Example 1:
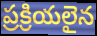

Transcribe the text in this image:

ప్రక్రియలైన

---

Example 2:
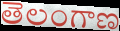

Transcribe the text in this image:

తెలంగాణ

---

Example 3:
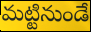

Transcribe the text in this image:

మట్టినుండే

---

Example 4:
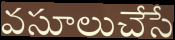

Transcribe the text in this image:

వసూలుచేసే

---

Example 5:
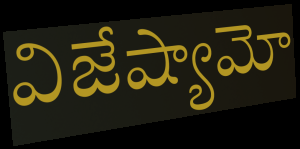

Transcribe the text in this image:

విజేష్యామో